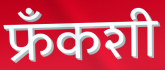
फ्रँकशी